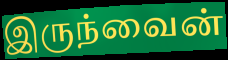
இருந்வைன்